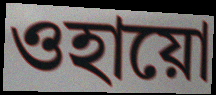
ওহায়ো